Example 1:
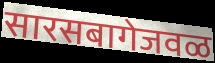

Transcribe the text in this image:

सारसबागेजवळ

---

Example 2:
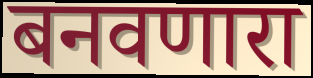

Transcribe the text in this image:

बनवणारा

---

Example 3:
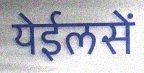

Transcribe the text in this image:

येईलसें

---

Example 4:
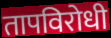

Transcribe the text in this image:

तापविरोधी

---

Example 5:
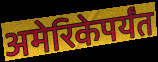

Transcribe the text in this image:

अमेरिकेपर्यंत